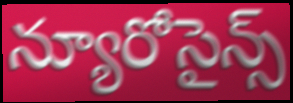
న్యూరోసైన్స్